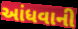
આંધવાની